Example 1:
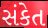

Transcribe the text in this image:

સંકેત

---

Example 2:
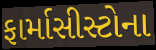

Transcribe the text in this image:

ફાર્માસીસ્ટોના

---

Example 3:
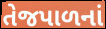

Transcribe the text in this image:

તેજપાળનાં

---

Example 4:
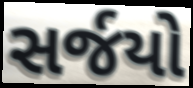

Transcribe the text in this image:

સર્જયો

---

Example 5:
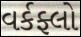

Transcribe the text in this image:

વર્કફ્લો